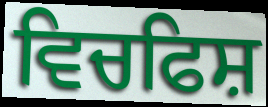
ਵਿਚਫਿਸ਼